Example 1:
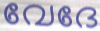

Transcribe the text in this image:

വേദേ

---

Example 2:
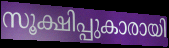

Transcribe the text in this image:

സൂക്ഷിപ്പുകാരായി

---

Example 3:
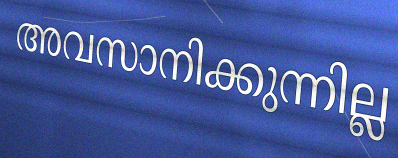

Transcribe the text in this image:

അവസാനിക്കുന്നില്ല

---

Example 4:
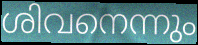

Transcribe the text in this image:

ശിവനെന്നും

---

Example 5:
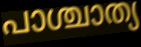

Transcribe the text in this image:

പാശ്ചാത്യ